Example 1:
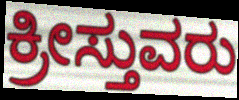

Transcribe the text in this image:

ಕ್ರೀಸ್ತುವರು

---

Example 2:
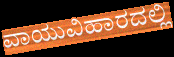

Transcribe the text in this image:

ವಾಯುವಿಹಾರದಲ್ಲಿ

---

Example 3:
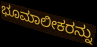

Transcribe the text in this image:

ಭೂಮಾಲೀಕರನ್ನು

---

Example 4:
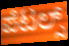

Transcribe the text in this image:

ಪೆಟಲ್ಸ್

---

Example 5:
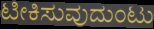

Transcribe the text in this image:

ಟೀಕಿಸುವುದುಂಟು